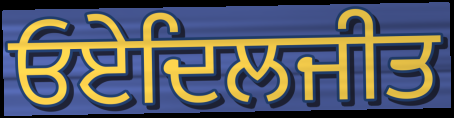
ਓਏਦਿਲਜੀਤ